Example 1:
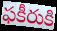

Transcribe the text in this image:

ఫకీరుకి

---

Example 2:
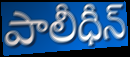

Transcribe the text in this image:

పాలీధీన్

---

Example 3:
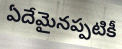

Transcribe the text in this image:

ఏదేమైనప్పటికీ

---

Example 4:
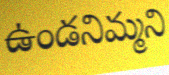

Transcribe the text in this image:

ఉండనిమ్మని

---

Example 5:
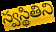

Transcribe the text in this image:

స్వస్థితిని